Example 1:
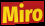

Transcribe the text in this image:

Miro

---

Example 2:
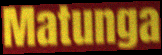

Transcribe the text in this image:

Matunga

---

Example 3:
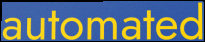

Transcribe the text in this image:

automated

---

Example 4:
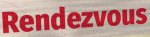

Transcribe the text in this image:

Rendezvous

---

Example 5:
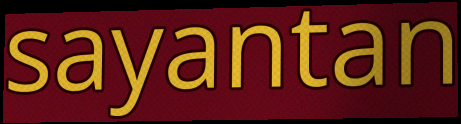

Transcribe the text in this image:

sayantan